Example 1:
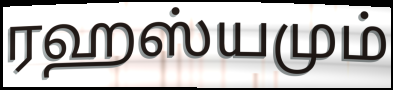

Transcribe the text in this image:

ரஹஸ்யமும்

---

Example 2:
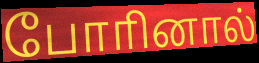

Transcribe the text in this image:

போரினால்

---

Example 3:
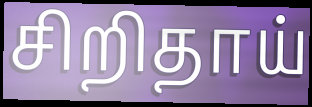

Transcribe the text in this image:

சிறிதாய்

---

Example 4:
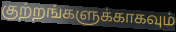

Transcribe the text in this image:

குற்றங்களுக்காகவும்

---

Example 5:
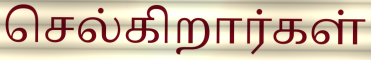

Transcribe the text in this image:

செல்கிறார்கள்